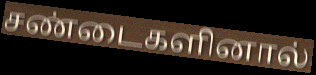
சண்டைகளினால்